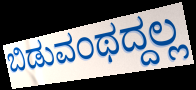
ಬಿಡುವಂಥದ್ದಲ್ಲ